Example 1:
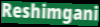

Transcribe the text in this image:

Reshimgani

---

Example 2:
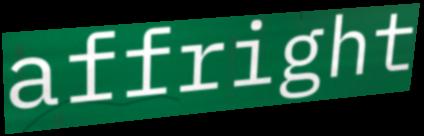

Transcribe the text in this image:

affright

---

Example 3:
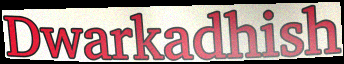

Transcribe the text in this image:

Dwarkadhish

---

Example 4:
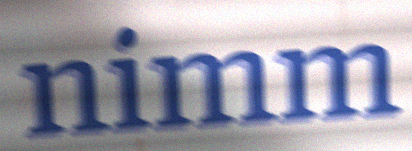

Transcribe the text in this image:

nimm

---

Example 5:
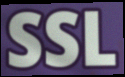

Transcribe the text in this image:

SSL